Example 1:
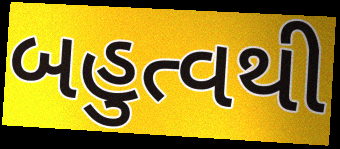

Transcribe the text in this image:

બહુત્વથી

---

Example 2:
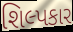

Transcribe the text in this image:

શિલ્પકાર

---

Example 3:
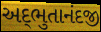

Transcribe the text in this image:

અદ્‌ભુતાનંદજી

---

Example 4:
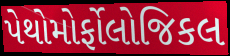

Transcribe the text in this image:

પેથોમોર્ફોલોજિકલ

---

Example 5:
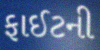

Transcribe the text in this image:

ફાઈટની